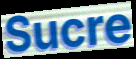
Sucre